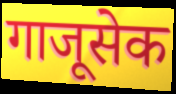
गाजूसेक